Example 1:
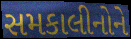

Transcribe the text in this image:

સમકાલીનોને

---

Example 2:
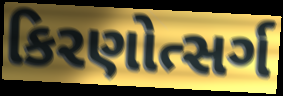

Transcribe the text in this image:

કિરણોત્સર્ગ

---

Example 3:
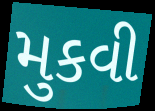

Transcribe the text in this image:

મુકવી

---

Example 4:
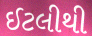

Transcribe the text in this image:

ઈટલીથી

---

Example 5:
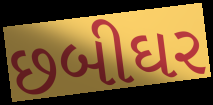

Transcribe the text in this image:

છબીઘર